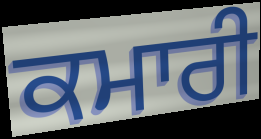
ਕਮਾਰੀ